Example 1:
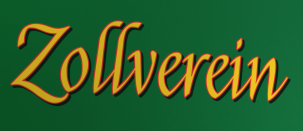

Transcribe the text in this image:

Zollverein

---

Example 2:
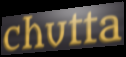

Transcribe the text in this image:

chutta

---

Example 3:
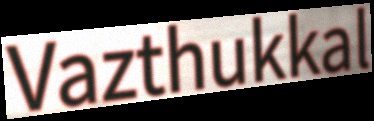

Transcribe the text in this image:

Vazthukkal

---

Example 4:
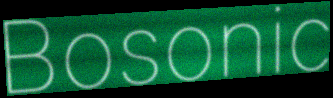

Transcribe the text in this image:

Bosonic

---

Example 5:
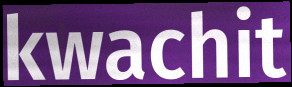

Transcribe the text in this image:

kwachit